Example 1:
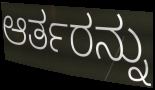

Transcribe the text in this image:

ಆರ್ತರನ್ನು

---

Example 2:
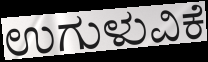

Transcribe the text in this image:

ಉಗುಳುವಿಕೆ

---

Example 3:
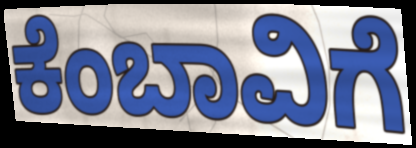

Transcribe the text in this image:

ಕೆಂಬಾವಿಗೆ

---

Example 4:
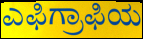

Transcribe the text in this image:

ಎಫಿಗ್ರಾಫಿಯ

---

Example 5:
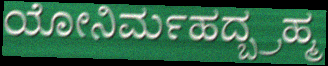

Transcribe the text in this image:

ಯೋನಿರ್ಮಹದ್ಬ್ರಹ್ಮ